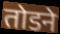
तोडने